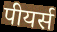
पीयर्स